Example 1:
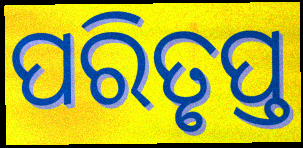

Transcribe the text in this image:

ପରିତୃପ୍ତ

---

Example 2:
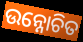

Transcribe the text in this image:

ଉନ୍ନୋଚିତ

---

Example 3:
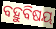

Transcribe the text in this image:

ବହୁବିଷୟ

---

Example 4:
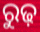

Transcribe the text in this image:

ରୁଢ଼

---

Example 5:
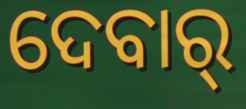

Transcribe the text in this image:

ଦେବାର୍